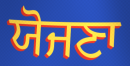
ਯੋਜਣਾ